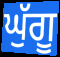
ਘੁੱਗੂ